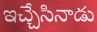
ఇచ్చేసినాడు